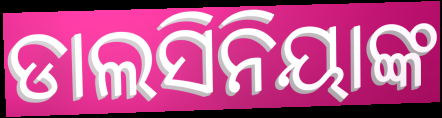
ଡାଲସିନିୟାଙ୍କ